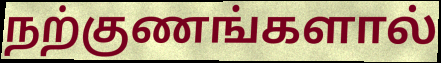
நற்குணங்களால்